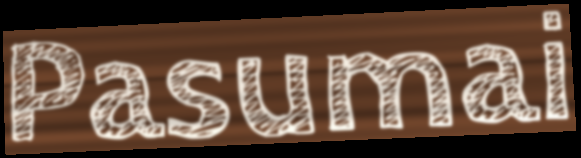
Pasumai